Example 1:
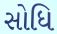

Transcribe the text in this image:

સોધિ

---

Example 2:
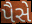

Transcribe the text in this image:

પૈસે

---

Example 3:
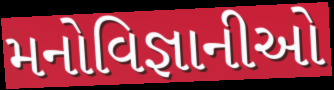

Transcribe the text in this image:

મનોવિજ્ઞાનીઓ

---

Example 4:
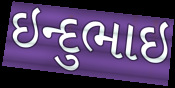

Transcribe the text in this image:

ઇન્દુભાઇ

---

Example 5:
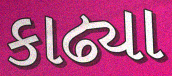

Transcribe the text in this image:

કાઢ્યા